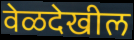
वेळदेखील